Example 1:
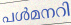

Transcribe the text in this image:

പൾമനറി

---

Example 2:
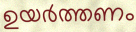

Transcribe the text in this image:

ഉയർത്തണം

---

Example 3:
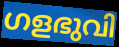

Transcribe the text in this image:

ഗളഭുവി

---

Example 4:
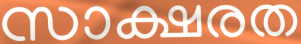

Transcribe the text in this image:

സാക്ഷരത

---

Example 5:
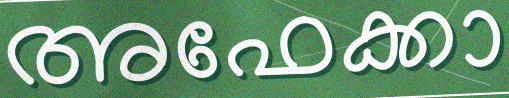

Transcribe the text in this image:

അഫേക്കാ